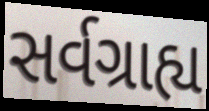
સર્વગ્રાહ્ય